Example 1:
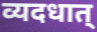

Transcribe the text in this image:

व्यदधात्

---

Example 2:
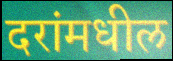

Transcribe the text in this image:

दरांमधील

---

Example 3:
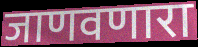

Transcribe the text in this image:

जाणवणारा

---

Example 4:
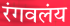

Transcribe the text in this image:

रंगवलंय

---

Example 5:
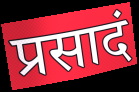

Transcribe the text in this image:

प्रसादं